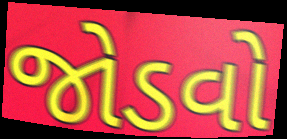
જોડવો